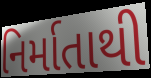
નિર્માતાથી